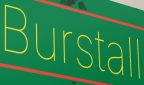
Burstall